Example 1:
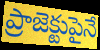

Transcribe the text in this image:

ప్రాజెక్టుపైనే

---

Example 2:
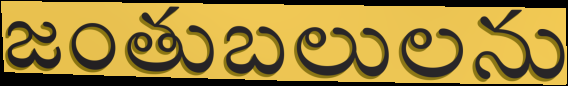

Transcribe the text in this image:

జంతుబలులను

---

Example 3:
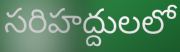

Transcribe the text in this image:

సరిహద్దులలో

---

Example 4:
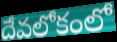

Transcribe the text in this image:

దేవలోకంలో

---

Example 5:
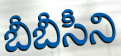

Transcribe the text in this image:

బీబీసీని